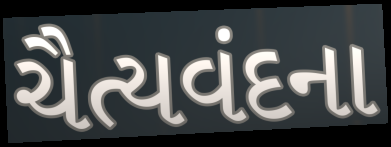
ચૈત્યવંદના